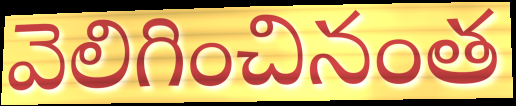
వెలిగించినంత